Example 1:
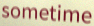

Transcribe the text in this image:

sometime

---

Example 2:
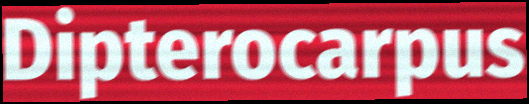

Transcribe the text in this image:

Dipterocarpus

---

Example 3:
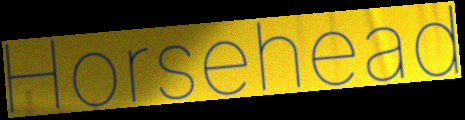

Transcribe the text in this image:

Horsehead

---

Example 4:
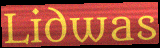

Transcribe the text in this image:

Lidwas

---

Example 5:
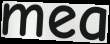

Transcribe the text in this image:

mea